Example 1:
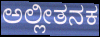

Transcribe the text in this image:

ಅಲ್ಲೀತನಕ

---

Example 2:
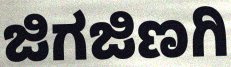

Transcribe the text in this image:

ಜಿಗಜಿಣಗಿ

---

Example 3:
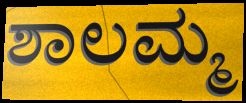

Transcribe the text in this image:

ಶಾಲಮ್ಮ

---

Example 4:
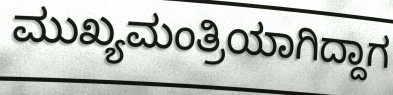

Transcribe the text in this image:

ಮುಖ್ಯಮಂತ್ರಿಯಾಗಿದ್ದಾಗ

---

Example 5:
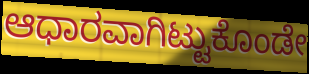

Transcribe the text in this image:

ಆಧಾರವಾಗಿಟ್ಟುಕೊಂಡೇ